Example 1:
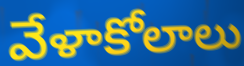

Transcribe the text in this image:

వేళాకోలాలు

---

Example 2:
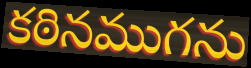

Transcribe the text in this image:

కఠినముగను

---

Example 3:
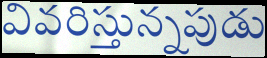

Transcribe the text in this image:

వివరిస్తున్నపుడు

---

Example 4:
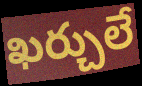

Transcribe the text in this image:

ఖర్చులే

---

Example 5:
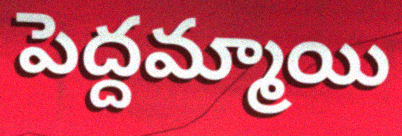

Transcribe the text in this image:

పెద్దమ్మాయి